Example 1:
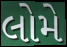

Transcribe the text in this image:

લોમે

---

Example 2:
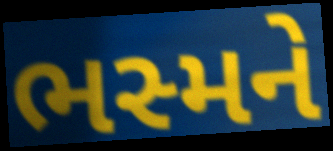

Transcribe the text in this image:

ભસ્મને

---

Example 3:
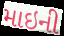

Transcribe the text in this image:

માઇની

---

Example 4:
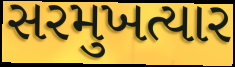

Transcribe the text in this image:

સરમુખત્યાર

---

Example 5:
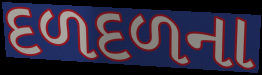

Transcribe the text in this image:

દળદળના